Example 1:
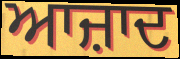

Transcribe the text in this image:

ਆਜ਼ਾਦ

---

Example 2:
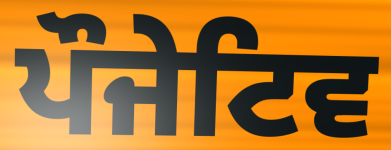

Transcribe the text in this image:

ਪੌਜੇਟਿਵ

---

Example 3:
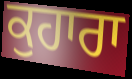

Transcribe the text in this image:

ਕੁਹਾਰਾ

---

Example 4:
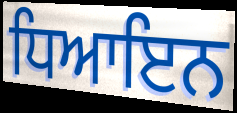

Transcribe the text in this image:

ਧਿਆਇਨ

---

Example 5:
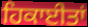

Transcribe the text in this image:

ਹਿਕਾਈਤਾਂ